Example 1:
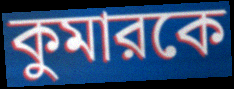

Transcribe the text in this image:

কুমারকে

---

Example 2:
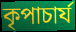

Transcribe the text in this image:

কৃপাচার্য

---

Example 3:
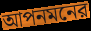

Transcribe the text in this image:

আপনমনের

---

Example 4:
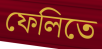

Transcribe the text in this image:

ফেলিতে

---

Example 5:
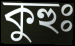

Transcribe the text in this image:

কুহুঃ